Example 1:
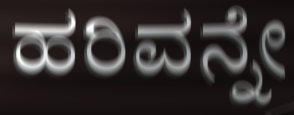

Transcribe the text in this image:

ಹರಿವನ್ನೇ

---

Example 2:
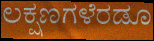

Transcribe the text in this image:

ಲಕ್ಷಣಗಳೆರಡೂ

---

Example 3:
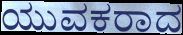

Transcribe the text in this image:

ಯುವಕರಾದ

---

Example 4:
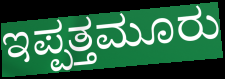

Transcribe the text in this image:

ಇಪ್ಪತ್ತಮೂರು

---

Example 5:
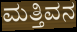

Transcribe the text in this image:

ಮತ್ತಿವನ